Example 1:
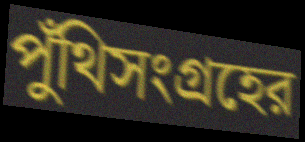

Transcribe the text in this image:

পুঁথিসংগ্রহের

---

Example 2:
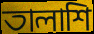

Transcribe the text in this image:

তালাশি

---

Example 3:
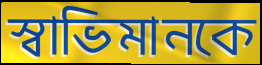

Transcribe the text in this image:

স্বাভিমানকে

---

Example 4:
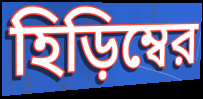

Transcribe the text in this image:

হিড়িম্বের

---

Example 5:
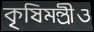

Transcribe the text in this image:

কৃষিমন্ত্রীও